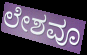
ಲೇಶವೂ